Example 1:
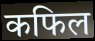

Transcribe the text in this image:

कफिल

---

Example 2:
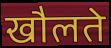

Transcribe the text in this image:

खौलते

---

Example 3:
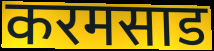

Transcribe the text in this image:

करमसाड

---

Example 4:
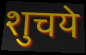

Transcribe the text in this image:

शुचये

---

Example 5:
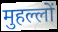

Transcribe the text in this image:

मुहल्लों